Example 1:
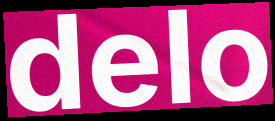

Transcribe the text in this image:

delo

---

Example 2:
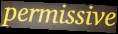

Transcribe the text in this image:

permissive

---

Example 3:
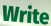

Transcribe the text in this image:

Write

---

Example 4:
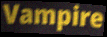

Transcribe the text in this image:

Vampire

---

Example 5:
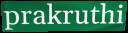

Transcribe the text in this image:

prakruthi